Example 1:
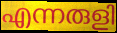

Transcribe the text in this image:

എന്നരുളി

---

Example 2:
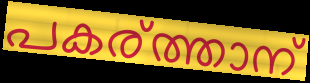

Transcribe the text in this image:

പകര്ത്താന്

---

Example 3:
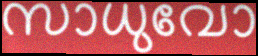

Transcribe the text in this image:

സാധുവോ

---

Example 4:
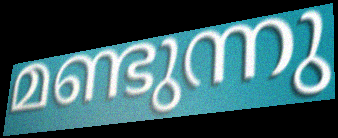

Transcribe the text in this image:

മണ്ടുന്നു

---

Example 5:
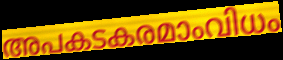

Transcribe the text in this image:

അപകടകരമാംവിധം